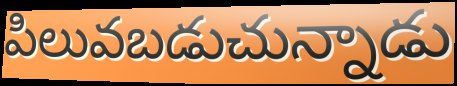
పిలువబడుచున్నాడు